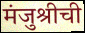
मंजुश्रीची